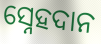
ସ୍ନେହଦାନ